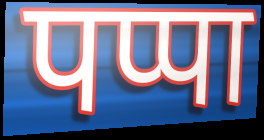
पप्‍पा